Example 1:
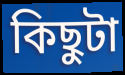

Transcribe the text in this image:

কিছুটা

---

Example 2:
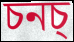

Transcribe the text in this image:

চনচ্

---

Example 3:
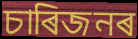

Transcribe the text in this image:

চাৰিজনৰ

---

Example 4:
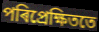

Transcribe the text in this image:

পৰিপ্ৰেক্ষিততে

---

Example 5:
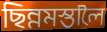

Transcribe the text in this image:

ছিন্নমস্তালৈ